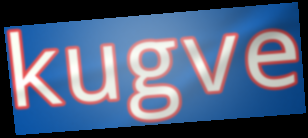
kugve